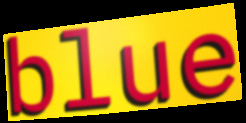
blue